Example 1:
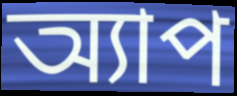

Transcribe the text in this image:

অ্যাপ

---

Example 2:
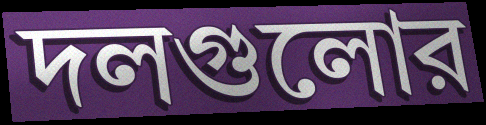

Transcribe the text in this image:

দলগুলোর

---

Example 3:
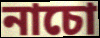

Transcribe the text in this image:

নাচো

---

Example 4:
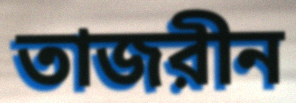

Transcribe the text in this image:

তাজরীন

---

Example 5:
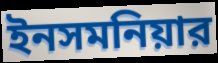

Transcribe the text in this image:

ইনসমনিয়ার